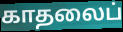
காதலைப்